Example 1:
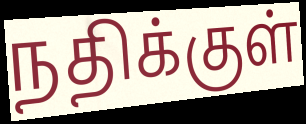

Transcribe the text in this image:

நதிக்குள்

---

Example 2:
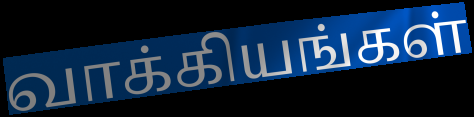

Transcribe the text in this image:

வாக்கியங்கள்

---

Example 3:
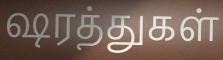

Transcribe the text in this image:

ஷரத்துகள்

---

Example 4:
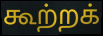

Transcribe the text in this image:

கூற்றக்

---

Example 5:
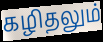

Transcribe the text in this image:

கழிதலும்